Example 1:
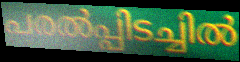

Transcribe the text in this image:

പരൽപ്പിടച്ചിൽ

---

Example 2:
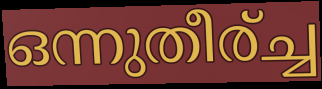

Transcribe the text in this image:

ഒന്നുതീര്ച്ച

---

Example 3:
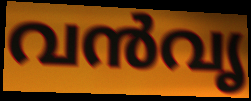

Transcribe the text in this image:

വൻവൃ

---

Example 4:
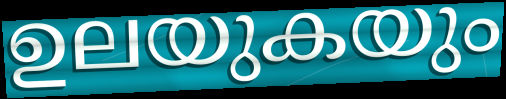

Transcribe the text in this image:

ഉലയുകയും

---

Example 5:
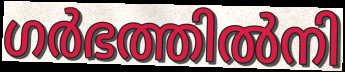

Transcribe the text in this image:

ഗർഭത്തിൽനി